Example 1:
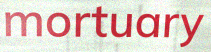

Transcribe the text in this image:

mortuary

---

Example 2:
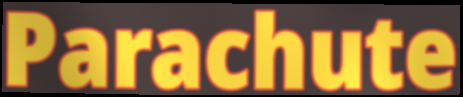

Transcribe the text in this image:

Parachute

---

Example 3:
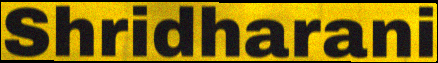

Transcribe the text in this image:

Shridharani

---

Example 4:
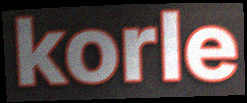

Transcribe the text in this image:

korle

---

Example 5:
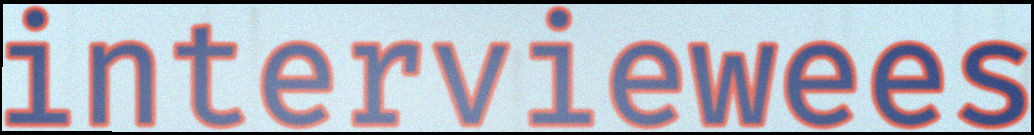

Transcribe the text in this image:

interviewees